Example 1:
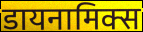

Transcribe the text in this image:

डायनामिक्स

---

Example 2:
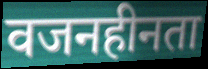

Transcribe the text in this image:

वजनहीनता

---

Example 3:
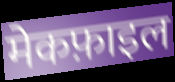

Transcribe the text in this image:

मेकफ़ाइल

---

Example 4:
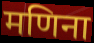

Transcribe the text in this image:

मणिना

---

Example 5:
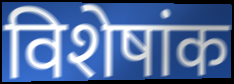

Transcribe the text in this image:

विशेषांक